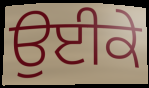
ਉਈਕੇ